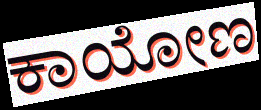
ಕಾಯೋಣ